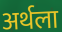
अर्थला